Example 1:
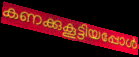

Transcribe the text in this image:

കണക്കുകൂട്ടിയപ്പോൾ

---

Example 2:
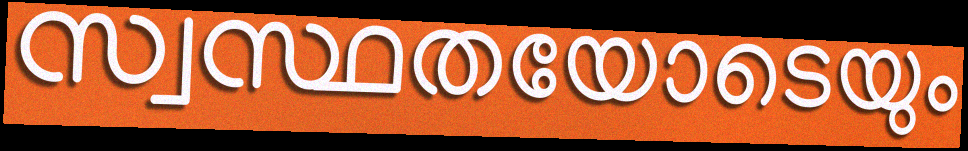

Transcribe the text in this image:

സ്വസ്ഥതയോടെയും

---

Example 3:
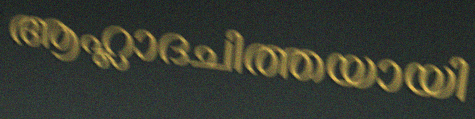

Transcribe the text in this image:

ആഹ്ലാദചിത്തയായി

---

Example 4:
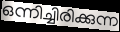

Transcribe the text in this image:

ഒന്നിച്ചിരിക്കുന്ന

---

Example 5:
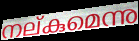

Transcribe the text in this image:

നല്‌കുമെന്നു